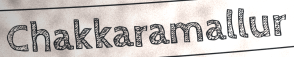
Chakkaramallur